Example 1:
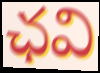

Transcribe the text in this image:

ఛవి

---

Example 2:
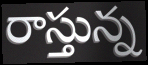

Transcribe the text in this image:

రాస్తున్న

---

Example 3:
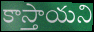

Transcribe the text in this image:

కాస్తాయని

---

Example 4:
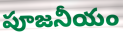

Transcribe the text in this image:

పూజనీయం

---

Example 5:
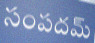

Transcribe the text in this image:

సంపదమ్